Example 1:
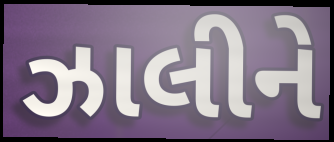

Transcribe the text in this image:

ઝાલીને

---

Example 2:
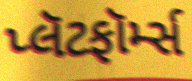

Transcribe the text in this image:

પ્લૅટફૉર્મ્સ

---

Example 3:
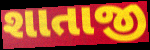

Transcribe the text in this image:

શાતાજી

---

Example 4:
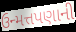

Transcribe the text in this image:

ઉન્મત્તપણાની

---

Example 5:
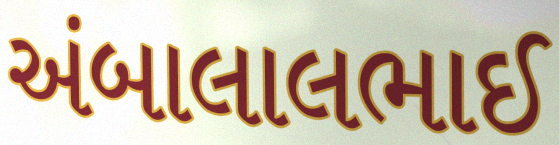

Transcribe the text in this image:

અંબાલાલભાઈ